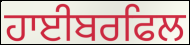
ਹਾਈਬਰਫਿਲ